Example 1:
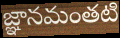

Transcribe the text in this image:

జ్ఞానమంతటి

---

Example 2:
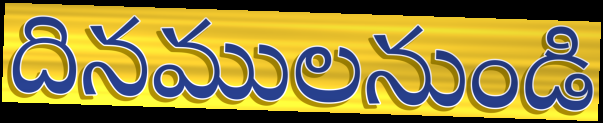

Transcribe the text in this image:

దినములనుండి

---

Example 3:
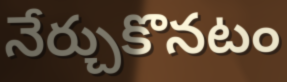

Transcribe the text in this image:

నేర్చుకొనటం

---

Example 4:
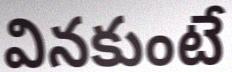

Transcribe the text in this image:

వినకుంటే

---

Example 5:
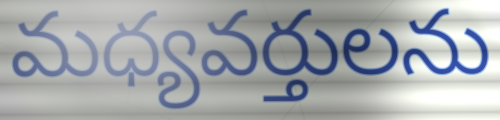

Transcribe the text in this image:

మధ్యవర్తులను